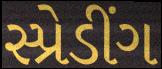
સ્પ્રેડીંગ